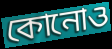
কোনোও